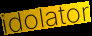
idolator